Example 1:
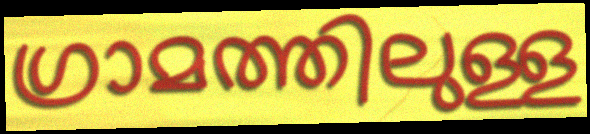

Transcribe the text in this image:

ഗ്രാമത്തിലുള്ള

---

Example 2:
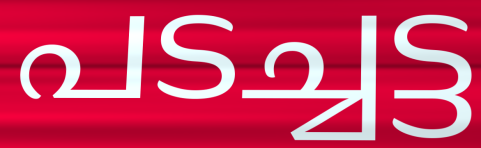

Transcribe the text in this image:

പടച്ചട്ട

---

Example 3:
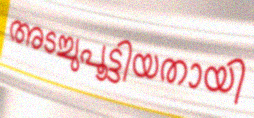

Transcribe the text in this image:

അടച്ചുപൂട്ടിയതായി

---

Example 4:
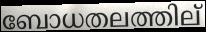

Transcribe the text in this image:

ബോധതലത്തില്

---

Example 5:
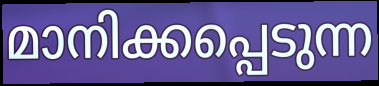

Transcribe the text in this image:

മാനിക്കപ്പെടുന്ന